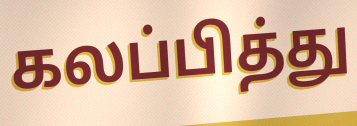
கலப்பித்து